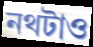
নথটাও